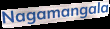
Nagamangala